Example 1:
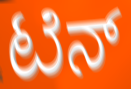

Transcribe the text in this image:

ಟೆನ್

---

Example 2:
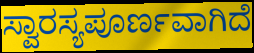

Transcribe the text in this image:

ಸ್ವಾರಸ್ಯಪೂರ್ಣವಾಗಿದೆ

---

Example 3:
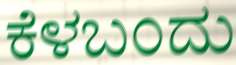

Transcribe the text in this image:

ಕೆಳಬಂದು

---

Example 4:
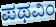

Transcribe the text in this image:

ಪಥವಿಂ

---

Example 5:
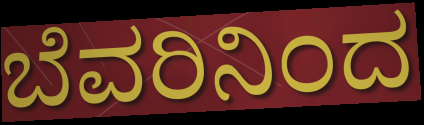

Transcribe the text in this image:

ಬೆವರಿನಿಂದ